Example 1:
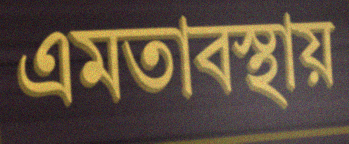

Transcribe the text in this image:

এমতাবস্থায়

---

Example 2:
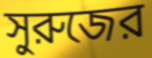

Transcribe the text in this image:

সুরুজের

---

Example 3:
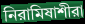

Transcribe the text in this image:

নিরামিষাশীরা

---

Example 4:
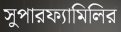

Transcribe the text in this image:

সুপারফ্যামিলির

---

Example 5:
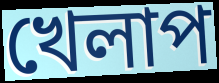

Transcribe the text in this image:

খেলাপ